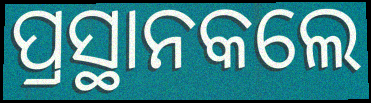
ପ୍ରସ୍ଥାନକଲେ